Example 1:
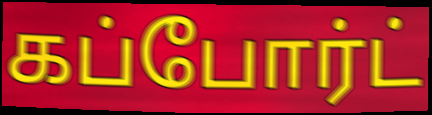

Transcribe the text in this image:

கப்போர்ட்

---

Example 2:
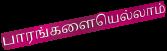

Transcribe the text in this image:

பாரங்களையெல்லாம்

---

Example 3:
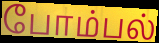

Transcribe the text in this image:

போம்பல்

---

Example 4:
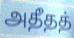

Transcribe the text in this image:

அதீதத்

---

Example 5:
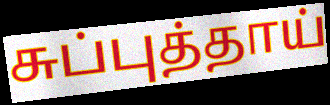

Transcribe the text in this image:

சுப்புத்தாய்